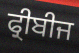
ਫ੍ਰੀਬੀਜ